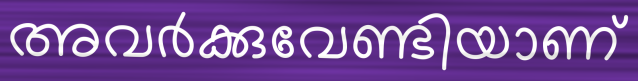
അവർക്കുവേണ്ടിയാണ്